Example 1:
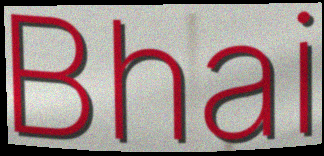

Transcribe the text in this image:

Bhai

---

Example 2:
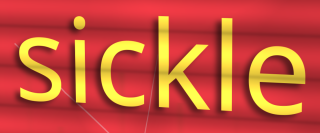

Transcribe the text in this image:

sickle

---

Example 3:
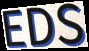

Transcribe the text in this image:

EDS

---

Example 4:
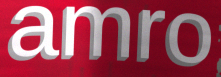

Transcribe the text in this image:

amro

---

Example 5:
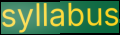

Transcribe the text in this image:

syllabus